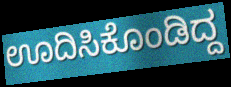
ಊದಿಸಿಕೊಂಡಿದ್ದ